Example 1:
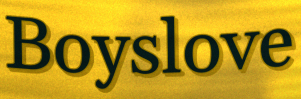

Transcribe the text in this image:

Boyslove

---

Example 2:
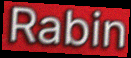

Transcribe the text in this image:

Rabin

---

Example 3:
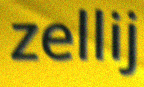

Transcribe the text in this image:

zellij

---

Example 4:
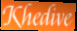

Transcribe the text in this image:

Khedive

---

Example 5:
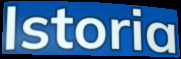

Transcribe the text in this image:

Istoria